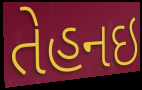
તેહનઇ